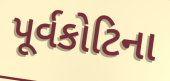
પૂર્વકોટિના